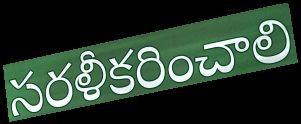
సరళీకరించాలి